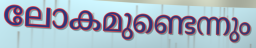
ലോകമുണ്ടെന്നും